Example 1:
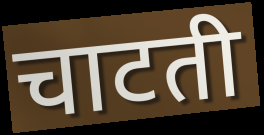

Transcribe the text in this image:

चाटती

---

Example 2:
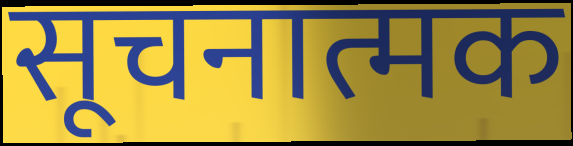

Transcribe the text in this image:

सूचनात्मक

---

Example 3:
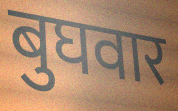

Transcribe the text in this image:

बुघवार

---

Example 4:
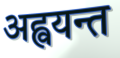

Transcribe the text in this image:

अह्वयन्त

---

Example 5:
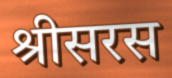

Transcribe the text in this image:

श्रीसरस